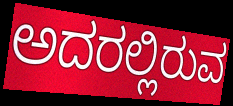
ಅದರಲ್ಲಿರುವ